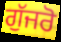
ਗੁੱਜਰੋ